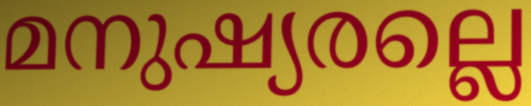
മനുഷ്യരല്ലെ